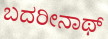
ಬದರೀನಾಥ್